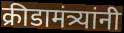
क्रीडामंत्र्यांनी